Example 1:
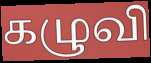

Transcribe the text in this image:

கழுவி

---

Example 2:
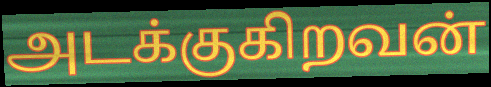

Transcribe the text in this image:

அடக்குகிறவன்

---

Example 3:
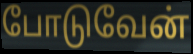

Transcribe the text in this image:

போடுவேன்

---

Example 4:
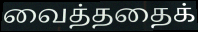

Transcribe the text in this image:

வைத்ததைக்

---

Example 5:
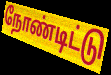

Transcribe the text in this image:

நோண்டிட்டு